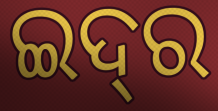
ଇଦ୍‍ର